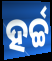
ହର୍ଚ୍ଚ